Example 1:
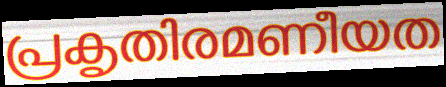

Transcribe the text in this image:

പ്രകൃതിരമണീയത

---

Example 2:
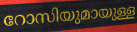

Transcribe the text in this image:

റോസിയുമായുള്ള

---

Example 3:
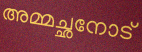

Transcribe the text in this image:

അമ്മച്ഛനോട്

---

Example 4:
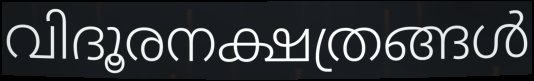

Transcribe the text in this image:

വിദൂരനക്ഷത്രങ്ങൾ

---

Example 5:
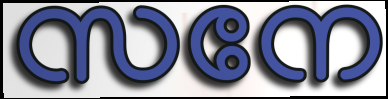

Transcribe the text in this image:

സനേ